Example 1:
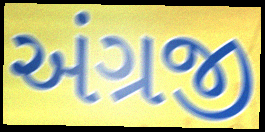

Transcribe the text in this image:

અંગ્રજી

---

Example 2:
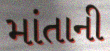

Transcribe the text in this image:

માંતાની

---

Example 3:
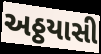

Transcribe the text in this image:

અઠ્ઠયાસી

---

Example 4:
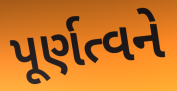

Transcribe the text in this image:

પૂર્ણત્વને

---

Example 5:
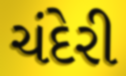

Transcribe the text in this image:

ચંદેરી